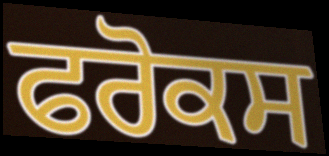
ਫਰੋਕਸ